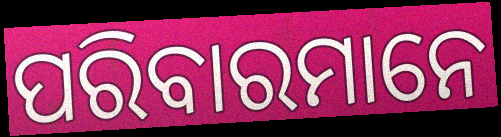
ପରିବାରମାନେ